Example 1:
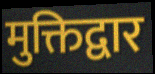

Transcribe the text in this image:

मुक्तिद्वार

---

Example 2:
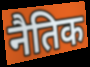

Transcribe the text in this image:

नैतिक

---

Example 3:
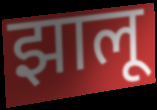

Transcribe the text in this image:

झालू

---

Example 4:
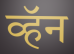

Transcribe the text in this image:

व्हॅन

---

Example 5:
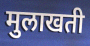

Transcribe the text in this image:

मुलाखती